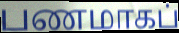
பணமாகப்